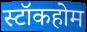
स्टॉकहोम